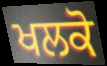
ਖਲਕੋ